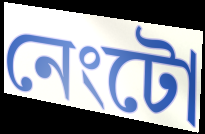
নেংটো